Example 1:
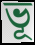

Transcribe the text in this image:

ভূ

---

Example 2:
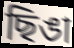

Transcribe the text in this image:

ছিঙা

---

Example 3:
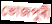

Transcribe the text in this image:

ভোজপুৰী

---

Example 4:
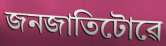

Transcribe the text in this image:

জনজাতিটোৱে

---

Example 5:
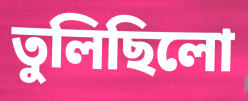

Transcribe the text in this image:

তুলিছিলো